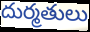
దుర్మతులు